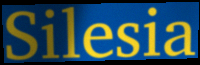
Silesia